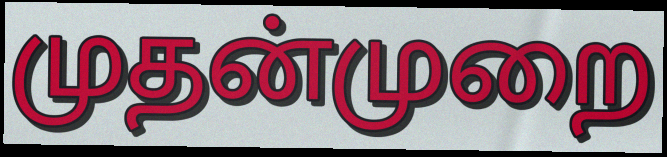
முதன்முறை